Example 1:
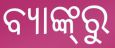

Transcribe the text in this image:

ବ୍ୟାଙ୍କ୍‌ରୁ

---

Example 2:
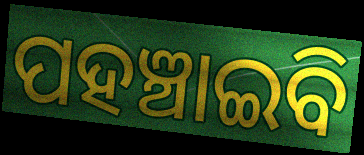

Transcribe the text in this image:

ପହଞ୍ଚାଇବି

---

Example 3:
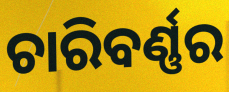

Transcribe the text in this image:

ଚାରିବର୍ଣ୍ଣର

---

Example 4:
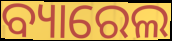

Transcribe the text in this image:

ବ୍ୟାରେଲ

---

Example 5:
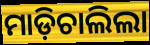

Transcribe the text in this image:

ମାଡ଼ିଚାଲିଲା